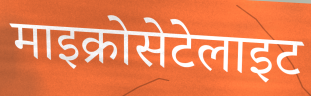
माइक्रोसेटेलाइट